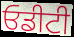
ਓਡੀਟੀ